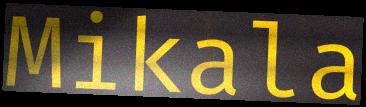
Mikala